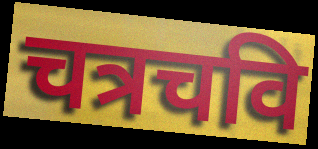
चत्रचवि